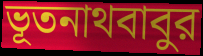
ভূতনাথবাবুর